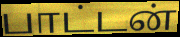
பாட்டன்